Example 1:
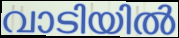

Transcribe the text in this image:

വാടിയിൽ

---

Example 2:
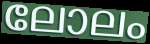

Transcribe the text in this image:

ലോലം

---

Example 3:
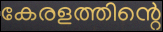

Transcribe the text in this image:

കേരളത്തിന്റെ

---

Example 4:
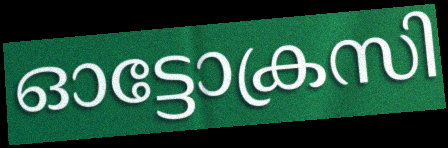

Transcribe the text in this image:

ഓട്ടോക്രസി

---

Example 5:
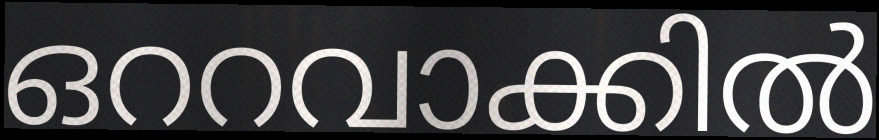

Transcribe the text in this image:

ഒററവാക്കിൽ